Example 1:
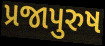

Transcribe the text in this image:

પ્રજાપુરુષ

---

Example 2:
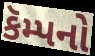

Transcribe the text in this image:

કૅમ્પનો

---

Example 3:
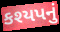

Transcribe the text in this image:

કશ્યપનું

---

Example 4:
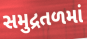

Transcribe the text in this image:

સમુદ્રતળમાં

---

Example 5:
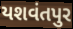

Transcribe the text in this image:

યશવંતપુર